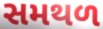
સમથળ